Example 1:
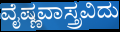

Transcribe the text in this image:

ವೈಷ್ಣವಾಸ್ತ್ರವಿದು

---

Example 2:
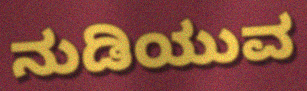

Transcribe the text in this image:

ನುಡಿಯುವ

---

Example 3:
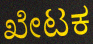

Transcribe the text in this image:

ಖೇಟಕ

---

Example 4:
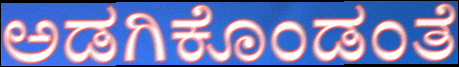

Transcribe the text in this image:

ಅಡಗಿಕೊಂಡಂತೆ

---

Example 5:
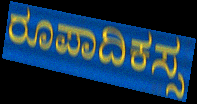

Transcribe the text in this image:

ರೂಪಾದಿಕಸ್ಸ